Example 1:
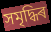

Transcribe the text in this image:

সমৃদ্ধিৰ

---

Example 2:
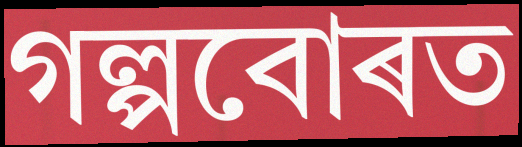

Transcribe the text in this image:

গল্পবোৰত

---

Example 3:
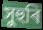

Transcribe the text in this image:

সুহুৰি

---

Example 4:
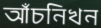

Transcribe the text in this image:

আঁচনিখন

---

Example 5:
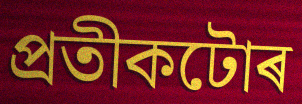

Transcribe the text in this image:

প্ৰতীকটোৰ